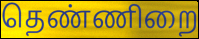
தெண்ணிறை